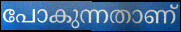
പോകുന്നതാണ്